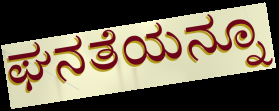
ಘನತೆಯನ್ನೂ